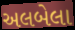
અલબેલા